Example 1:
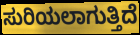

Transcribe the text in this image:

ಸುರಿಯಲಾಗುತ್ತಿದೆ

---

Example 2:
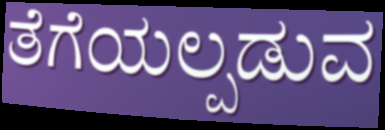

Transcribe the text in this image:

ತೆಗೆಯಲ್ಪಡುವ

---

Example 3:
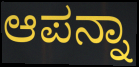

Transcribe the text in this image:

ಆಪನ್ನಾ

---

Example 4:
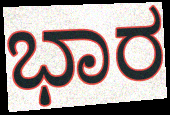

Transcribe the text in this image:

ಭಾರ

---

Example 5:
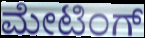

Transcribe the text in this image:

ಮೇಟಿಂಗ್